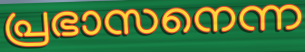
പ്രഭാസനെന്ന